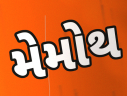
મેમોથ